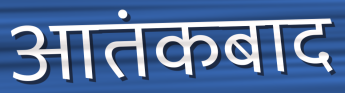
आतंकबाद